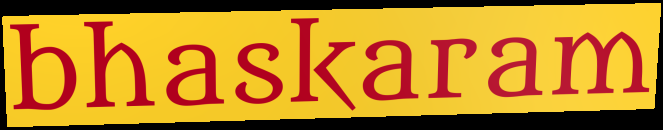
bhaskaram